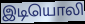
இடியொலி